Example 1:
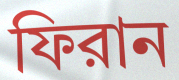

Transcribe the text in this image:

ফিরান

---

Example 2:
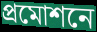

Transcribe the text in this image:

প্রমোশনে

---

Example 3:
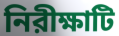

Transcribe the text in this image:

নিরীক্ষাটি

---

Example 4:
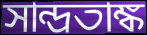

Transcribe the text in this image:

সান্দ্রতাঙ্ক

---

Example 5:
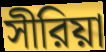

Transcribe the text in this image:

সীরিয়া